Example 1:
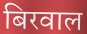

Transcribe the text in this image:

बिरवाल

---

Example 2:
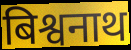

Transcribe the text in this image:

बिश्वनाथ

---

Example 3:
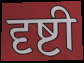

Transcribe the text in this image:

दृष्टी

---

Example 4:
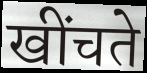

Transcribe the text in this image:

खींचते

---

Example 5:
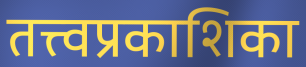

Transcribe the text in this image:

तत्त्वप्रकाशिका